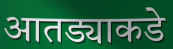
आतड्याकडे